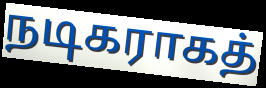
நடிகராகத்